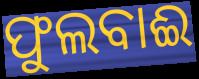
ଫୁଲବାଈ